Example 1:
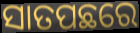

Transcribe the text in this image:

ସାତପଛରେ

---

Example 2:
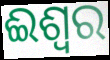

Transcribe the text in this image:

ଈଶ୍ବର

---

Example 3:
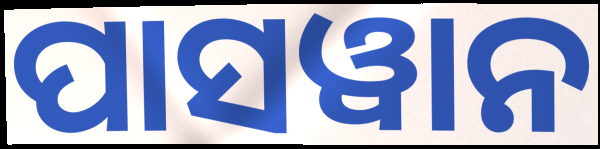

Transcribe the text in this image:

ପାସୱାନ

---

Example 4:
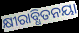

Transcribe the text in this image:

କ୍ଷୀରାବ୍ଧିତନୟା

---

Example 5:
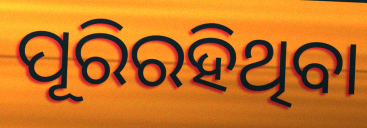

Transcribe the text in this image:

ପୂରିରହିଥିବା